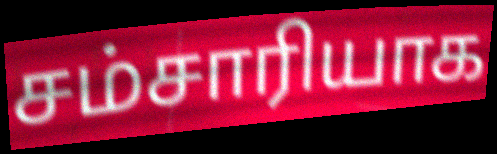
சம்சாரியாக